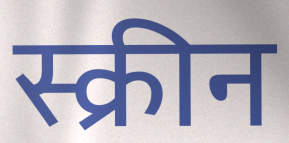
स्क्रीन